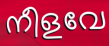
നീളവേ